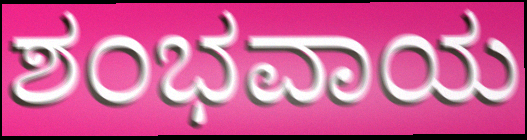
ಶಂಭವಾಯ